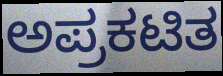
ಅಪ್ರಕಟಿತ